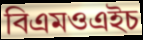
বিএমওএইচ